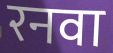
रनवा